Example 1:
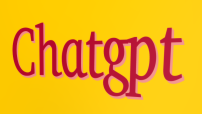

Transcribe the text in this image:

Chatgpt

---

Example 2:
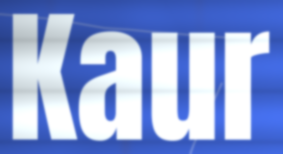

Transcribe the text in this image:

Kaur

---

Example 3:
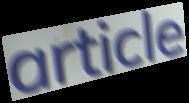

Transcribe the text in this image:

article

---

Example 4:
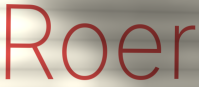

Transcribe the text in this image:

Roer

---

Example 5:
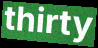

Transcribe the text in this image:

thirty